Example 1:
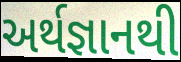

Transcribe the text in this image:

અર્થજ્ઞાનથી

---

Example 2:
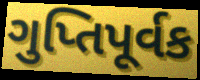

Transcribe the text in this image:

ગુપ્તિપૂર્વક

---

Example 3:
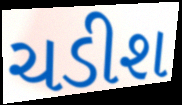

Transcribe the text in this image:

ચડીશ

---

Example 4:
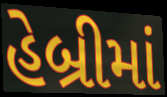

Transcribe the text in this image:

હેબ્રીમાં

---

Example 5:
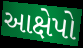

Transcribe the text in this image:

આક્ષેપો